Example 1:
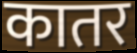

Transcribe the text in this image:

कातर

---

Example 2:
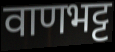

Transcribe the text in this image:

वाणभट्ट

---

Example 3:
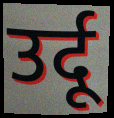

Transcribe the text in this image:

उर्दू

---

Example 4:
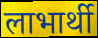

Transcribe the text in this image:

लाभार्थी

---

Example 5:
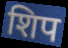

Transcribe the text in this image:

शिप